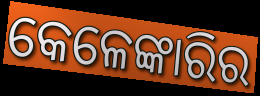
କେଳେଙ୍କାରିର